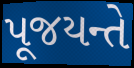
પૂજયન્તે